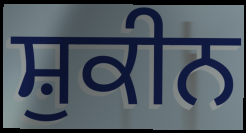
ਸ਼ੁਕੀਨ